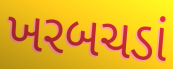
ખરબચડાં